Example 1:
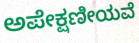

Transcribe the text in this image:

ಅಪೇಕ್ಷಣೀಯವೆ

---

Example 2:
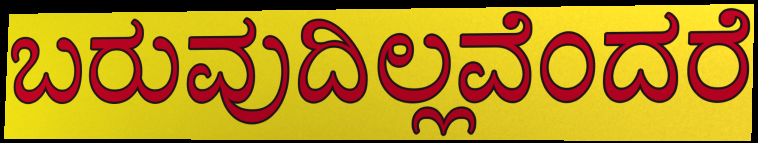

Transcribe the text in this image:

ಬರುವುದಿಲ್ಲವೆಂದರೆ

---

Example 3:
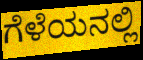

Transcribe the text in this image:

ಗೆಳೆಯನಲ್ಲಿ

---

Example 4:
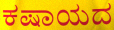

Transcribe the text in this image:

ಕಷಾಯದ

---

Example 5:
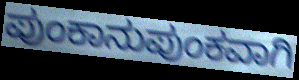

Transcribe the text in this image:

ಪುಂಕಾನುಪುಂಕವಾಗಿ